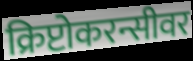
क्रिप्टोकरन्सीवर